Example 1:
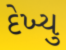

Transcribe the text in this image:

દેખ્યુ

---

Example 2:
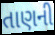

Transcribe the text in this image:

તાણની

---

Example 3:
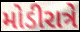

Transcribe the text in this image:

મોડીરાત્રે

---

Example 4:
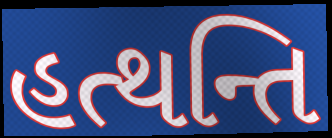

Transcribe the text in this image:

હત્થન્તિ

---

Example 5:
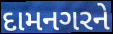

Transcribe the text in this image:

દામનગરને